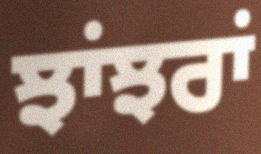
ਝਾਂਝਰਾਂ